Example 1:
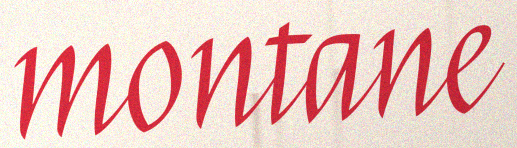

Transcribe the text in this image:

montane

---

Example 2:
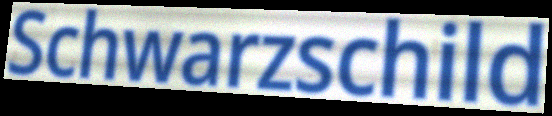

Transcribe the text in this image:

Schwarzschild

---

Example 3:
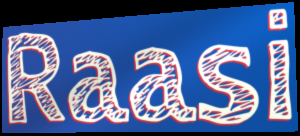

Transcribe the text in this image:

Raasi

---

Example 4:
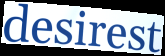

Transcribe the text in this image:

desirest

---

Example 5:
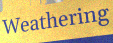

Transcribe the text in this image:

Weathering